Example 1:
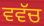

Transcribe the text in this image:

ਵਵੱਚ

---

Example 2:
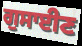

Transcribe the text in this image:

ਗੁਸਾਈਣ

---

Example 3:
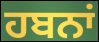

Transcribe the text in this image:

ਹਬਨਾਂ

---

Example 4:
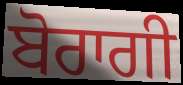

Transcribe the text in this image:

ਬੋਰਾਗੀ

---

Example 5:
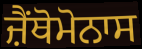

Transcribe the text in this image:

ਜ਼ੈਂਥੋਮੋਨਾਸ